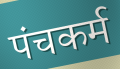
पंचकर्म